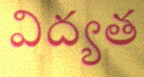
విద్యత